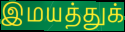
இமயத்துக்